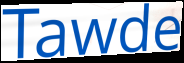
Tawde